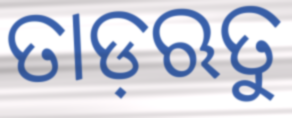
ତାଡ଼ଋତୁ